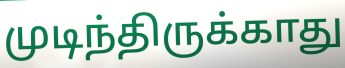
முடிந்திருக்காது